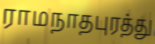
ராமநாதபுரத்து